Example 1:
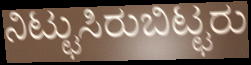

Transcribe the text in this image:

ನಿಟ್ಟುಸಿರುಬಿಟ್ಟರು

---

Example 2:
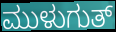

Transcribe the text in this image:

ಮುಳುಗುತ್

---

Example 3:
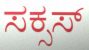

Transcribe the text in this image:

ಸಕ್ಸಸ್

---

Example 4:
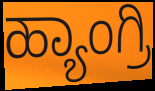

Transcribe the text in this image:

ಹ್ಯಾಂಗ್ರಿ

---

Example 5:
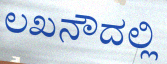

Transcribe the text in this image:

ಲಖನೌದಲ್ಲಿ